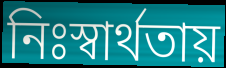
নিঃস্বার্থতায়